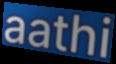
aathi